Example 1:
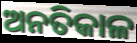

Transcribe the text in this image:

ଅନତିକାଳ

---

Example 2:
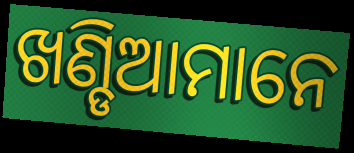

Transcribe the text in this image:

ଖଣ୍ଡିଆମାନେ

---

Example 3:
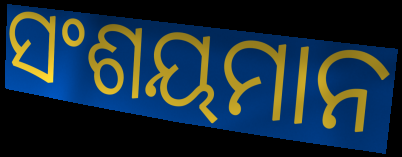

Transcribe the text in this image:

ସଂଶୟମାନ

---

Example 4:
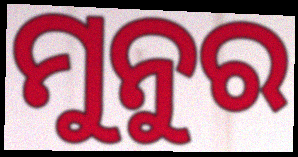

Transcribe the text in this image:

ମୁନୁର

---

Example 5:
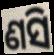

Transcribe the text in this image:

ଣସି